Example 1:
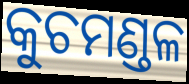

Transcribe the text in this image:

କୁଚମଣ୍ଡଳ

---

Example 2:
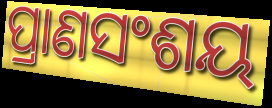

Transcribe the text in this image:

ପ୍ରାଣସଂଶୟ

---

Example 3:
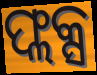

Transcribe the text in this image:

ଫ୍ଲକ୍ସ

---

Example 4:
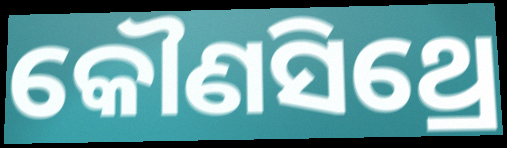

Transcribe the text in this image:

କୌଣସିଥ୍ରେ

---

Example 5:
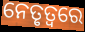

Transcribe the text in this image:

ନେତୃତ୍ଵରେ